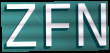
ZFN